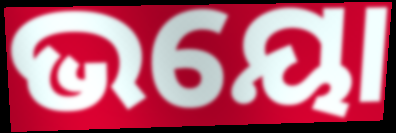
ଭୟୋ